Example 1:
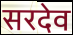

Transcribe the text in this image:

सरदेव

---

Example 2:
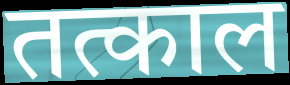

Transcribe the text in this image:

तत्‍काल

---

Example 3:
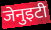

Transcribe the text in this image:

जेनुइटी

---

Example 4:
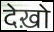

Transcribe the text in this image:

देख़ो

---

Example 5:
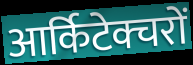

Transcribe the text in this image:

आर्किटेक्चरों